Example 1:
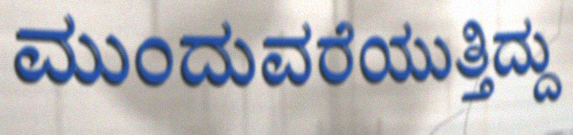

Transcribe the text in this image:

ಮುಂದುವರೆಯುತ್ತಿದ್ದು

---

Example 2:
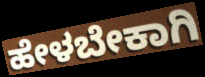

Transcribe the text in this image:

ಹೇಳಬೇಕಾಗಿ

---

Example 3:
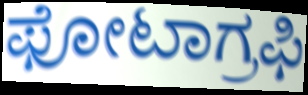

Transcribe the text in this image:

ಫೋಟಾಗ್ರಫಿ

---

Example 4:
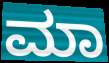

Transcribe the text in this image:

ಮಾ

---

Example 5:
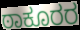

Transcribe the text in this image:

ಠಾಕೂರರ